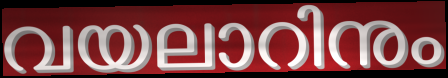
വയലാറിനും